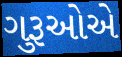
ગુરૂઓએ